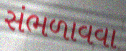
સંભળાવવા